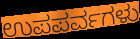
ಉಪಪರ್ವಗಳು